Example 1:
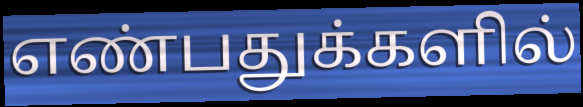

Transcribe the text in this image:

எண்பதுக்களில்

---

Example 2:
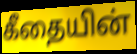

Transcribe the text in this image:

கீதையின்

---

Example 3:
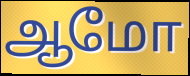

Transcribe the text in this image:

ஆமோ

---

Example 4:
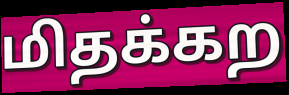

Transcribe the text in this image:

மிதக்கற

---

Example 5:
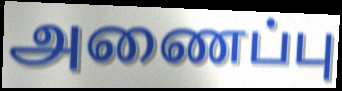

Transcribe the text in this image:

அணைப்பு